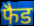
फैड